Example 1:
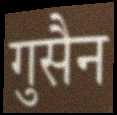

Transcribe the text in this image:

गुसैन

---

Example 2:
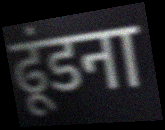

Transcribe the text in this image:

ढूंडना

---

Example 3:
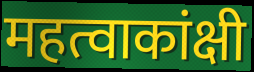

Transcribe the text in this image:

महत्‍वाकांक्षी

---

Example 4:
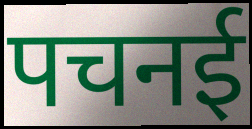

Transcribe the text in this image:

पचनई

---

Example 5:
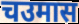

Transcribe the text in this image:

चउमास